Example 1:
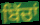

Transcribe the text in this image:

ਬਿੱਚਾਂ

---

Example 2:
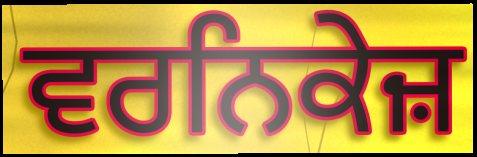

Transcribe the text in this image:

ਵਰਨਿਕੇਜ਼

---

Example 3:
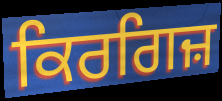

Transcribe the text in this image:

ਕਿਰਗਿਜ਼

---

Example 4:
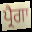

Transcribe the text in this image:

ਪ੍ਰੈਗਾ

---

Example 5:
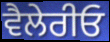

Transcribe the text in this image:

ਵੈਲੇਰੀਓ